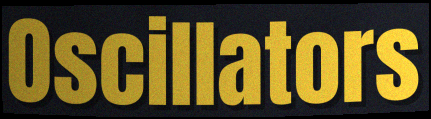
Oscillators